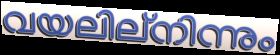
വയലില്നിന്നും